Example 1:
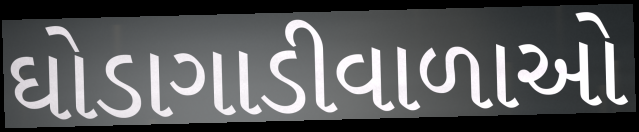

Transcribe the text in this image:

ઘોડાગાડીવાળાઓ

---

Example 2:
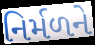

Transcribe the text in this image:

નિર્મળને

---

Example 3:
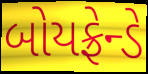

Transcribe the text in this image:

બોયફ્રેન્ડે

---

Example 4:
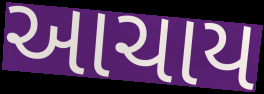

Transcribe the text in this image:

આચાય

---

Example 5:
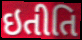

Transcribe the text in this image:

ઇતીતિ